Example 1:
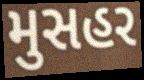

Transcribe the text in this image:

મુસહર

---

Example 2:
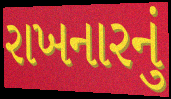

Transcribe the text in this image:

રાખનારનું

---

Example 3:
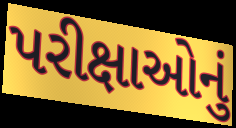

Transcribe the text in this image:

પરીક્ષાઓનું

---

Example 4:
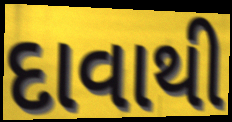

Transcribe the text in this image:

દાવાથી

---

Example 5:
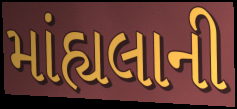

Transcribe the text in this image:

માંહ્યલાની